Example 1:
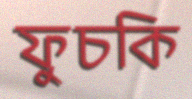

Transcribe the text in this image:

ফুচকি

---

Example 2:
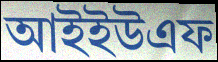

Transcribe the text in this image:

আইইউএফ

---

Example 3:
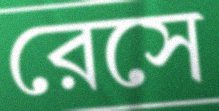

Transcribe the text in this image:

রেসে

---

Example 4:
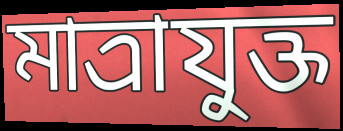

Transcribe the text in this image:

মাত্রাযুক্ত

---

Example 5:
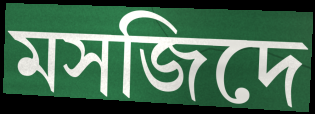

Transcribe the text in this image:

মসজিদে